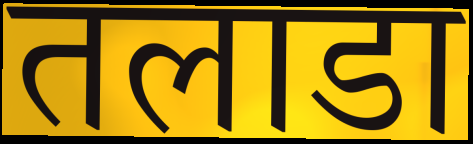
तलाडा